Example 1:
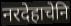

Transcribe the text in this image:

नरदेहाचेनि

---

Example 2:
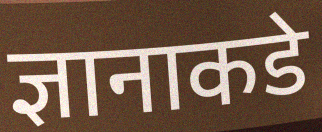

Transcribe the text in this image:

ज्ञानाकडे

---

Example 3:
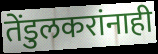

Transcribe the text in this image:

तेंडुलकरांनाही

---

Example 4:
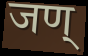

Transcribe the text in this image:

जण्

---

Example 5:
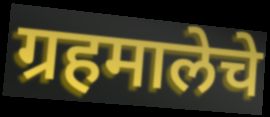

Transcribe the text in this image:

ग्रहमालेचे